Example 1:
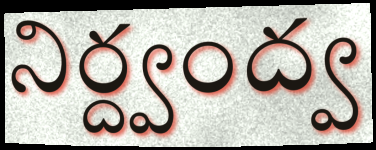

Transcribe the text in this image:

నిర్ద్వంద్వ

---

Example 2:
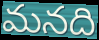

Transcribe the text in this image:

మనది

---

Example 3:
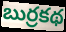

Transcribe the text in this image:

బుర్రకథ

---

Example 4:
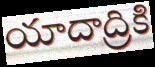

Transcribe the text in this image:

యాదాద్రికి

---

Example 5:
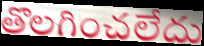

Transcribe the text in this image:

తొలగించలేదు